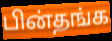
பின்தங்க